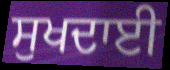
ਸੁਖਦਾਈ